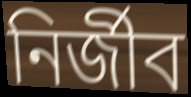
নির্জীব